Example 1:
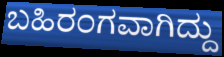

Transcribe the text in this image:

ಬಹಿರಂಗವಾಗಿದ್ದು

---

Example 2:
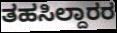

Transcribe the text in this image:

ತಹಸಿಲ್ದಾರರ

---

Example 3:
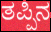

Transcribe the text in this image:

ತಪ್ಪಿನ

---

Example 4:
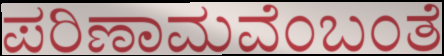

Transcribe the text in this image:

ಪರಿಣಾಮವೆಂಬಂತೆ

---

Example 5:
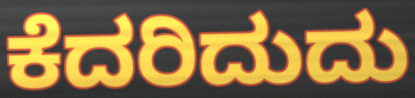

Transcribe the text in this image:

ಕೆದರಿದುದು